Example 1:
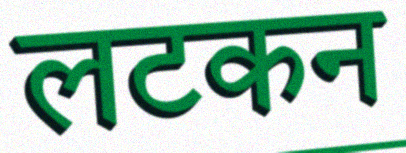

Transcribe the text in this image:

लटकन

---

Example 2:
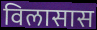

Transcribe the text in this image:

विलासास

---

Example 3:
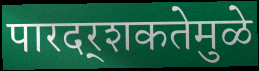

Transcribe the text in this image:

पारदर्शकतेमुळे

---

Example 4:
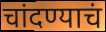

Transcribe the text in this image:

चांदण्याचं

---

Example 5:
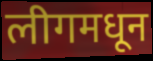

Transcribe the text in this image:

लीगमधून